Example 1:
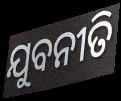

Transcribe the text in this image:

ଯୁବନୀତି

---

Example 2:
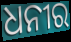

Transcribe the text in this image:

ଧନୀର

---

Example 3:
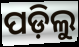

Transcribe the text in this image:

ପଡ଼ିଲୁ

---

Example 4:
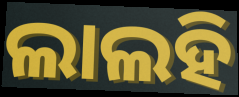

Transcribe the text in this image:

ଲାଲହି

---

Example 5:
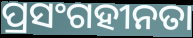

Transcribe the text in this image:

ପ୍ରସଂଗହୀନତା